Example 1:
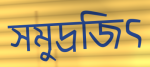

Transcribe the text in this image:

সমুদ্রজিৎ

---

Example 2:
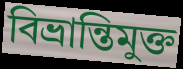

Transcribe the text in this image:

বিভ্রান্তিমুক্ত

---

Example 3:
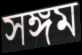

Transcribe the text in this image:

সঙ্গম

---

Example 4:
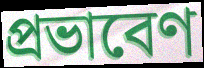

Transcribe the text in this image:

প্রভাবেণ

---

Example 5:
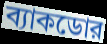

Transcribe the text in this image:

ব্যাকডোর